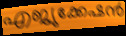
എജ്യുക്കേഷൻ